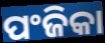
ପଂଜିକା